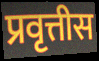
प्रवृत्तीस